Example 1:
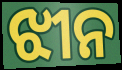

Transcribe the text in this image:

ଝୀନ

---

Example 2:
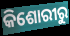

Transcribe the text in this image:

କିଶୋରୀରୁ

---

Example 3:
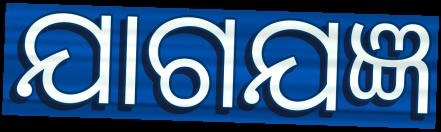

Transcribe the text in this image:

ଯାଗଯଜ୍ଞ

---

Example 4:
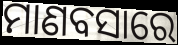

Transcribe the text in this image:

ମାଣବସାରେ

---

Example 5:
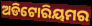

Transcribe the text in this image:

ଅଡିଟୋରିୟମର